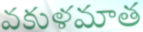
వకుళమాత